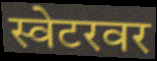
स्वेटरवर